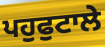
ਪਹੁਫੁਟਾਲੇ